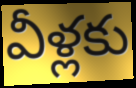
వీళ్లకు